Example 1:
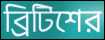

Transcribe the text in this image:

ব্রিটিশের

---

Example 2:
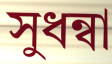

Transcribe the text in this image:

সুধন্বা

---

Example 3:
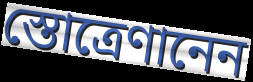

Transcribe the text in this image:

স্তোত্রেণানেন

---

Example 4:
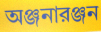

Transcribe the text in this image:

অঞ্জনারঞ্জন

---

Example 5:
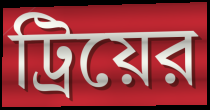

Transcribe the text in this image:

ট্রিয়ের